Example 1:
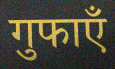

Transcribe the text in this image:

गुफाएँ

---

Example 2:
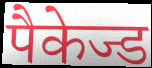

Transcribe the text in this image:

पैकेज्ड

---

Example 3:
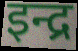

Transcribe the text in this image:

इन्द्र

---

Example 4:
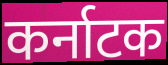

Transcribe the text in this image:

कर्नाटक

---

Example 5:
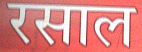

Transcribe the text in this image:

रसाल